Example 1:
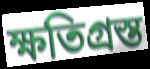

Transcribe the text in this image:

ক্ষতিগ্ৰস্ত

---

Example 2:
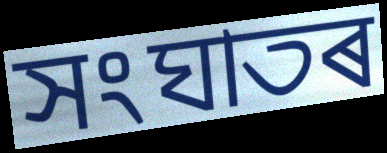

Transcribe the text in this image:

সংঘাতৰ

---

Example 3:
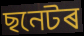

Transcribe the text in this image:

ছনেটৰ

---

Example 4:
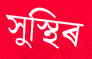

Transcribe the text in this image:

সুস্থিৰ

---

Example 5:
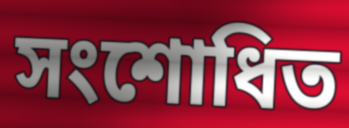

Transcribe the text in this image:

সংশোধিত